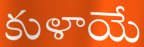
కుళాయే